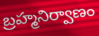
బ్రహ్మనిర్వాణం